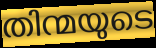
തിന്മയുടെ